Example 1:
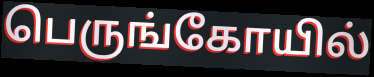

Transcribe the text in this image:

பெருங்கோயில்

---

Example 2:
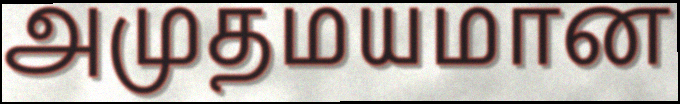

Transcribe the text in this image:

அமுதமயமான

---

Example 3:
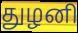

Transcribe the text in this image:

துழனி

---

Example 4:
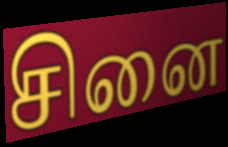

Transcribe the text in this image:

சினை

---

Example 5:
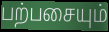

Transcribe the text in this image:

பற்பசையும்